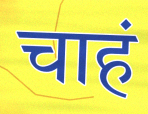
चाहं